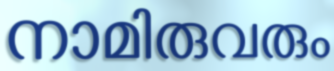
നാമിരുവരും